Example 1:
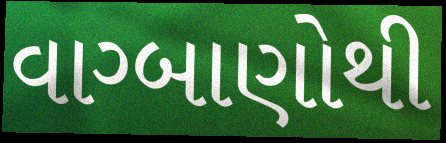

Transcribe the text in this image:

વાગ્બાણોથી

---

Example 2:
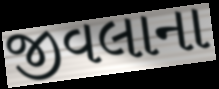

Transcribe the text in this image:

જીવલાના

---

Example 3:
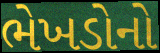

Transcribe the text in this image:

ભેખડોનો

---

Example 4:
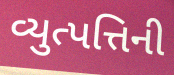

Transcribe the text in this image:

વ્યુત્પત્તિની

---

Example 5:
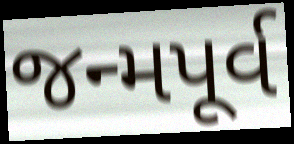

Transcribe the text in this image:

જન્મપૂર્વ